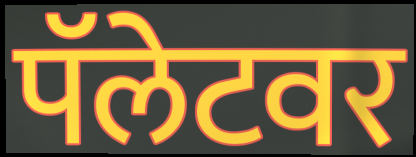
पॅलेटवर